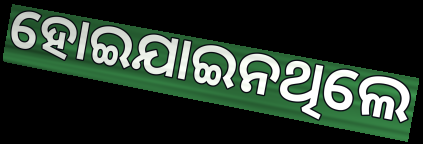
ହୋଇଯାଇନଥିଲେ